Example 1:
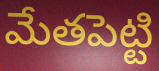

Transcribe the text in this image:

మేతపెట్టి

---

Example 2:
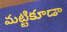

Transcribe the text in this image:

మట్టికూడా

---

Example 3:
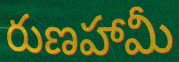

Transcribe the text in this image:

రుణహామీ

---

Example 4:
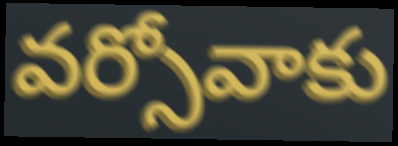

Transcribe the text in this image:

వర్సోవాకు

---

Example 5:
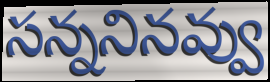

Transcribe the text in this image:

సన్ననినవ్వు